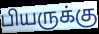
பியருக்கு